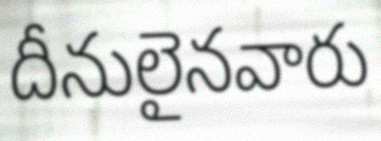
దీనులైనవారు